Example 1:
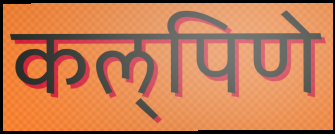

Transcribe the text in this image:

कल्पिणे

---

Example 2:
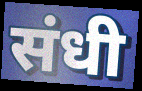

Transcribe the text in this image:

संधी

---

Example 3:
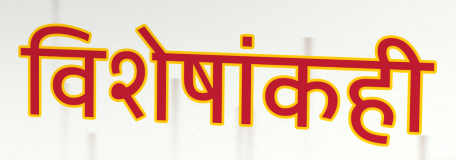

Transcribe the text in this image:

विशेषांकही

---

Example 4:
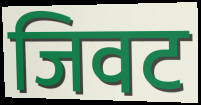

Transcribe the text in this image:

जिवट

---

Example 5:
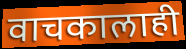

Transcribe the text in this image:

वाचकालाही